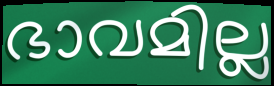
ഭാവമില്ല